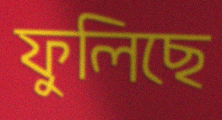
ফুলিছে